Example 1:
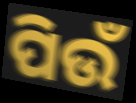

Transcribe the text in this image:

ପିଉଁ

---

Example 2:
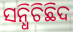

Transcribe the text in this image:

ସନ୍ଧିଚିଛିଦ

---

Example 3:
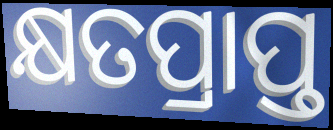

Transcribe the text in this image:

କ୍ଷତପ୍ରାପ୍ତ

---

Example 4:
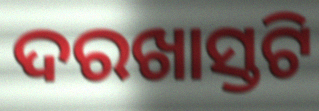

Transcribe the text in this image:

ଦରଖାସ୍ତଟି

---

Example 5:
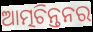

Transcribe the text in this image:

ଆତ୍ମଚିନ୍ତନର